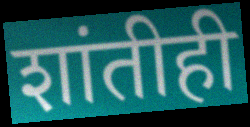
शांतीही